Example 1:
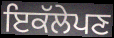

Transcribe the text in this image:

ਇਕੱਲੇਪਣ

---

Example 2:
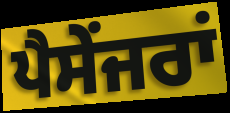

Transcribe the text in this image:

ਪੈਸੇਂਜਰਾਂ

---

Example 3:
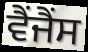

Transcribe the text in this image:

ਵੈਂਜੈਂਸ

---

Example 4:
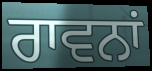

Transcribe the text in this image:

ਰਾਵਨਾਂ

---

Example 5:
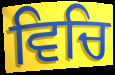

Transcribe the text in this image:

ਵਿਚਿ